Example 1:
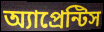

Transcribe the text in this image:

অ্যাপ্রেন্টিস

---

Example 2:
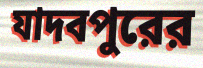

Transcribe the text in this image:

যাদবপুরের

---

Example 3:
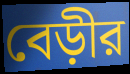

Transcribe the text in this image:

বেড়ীর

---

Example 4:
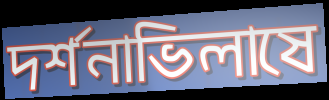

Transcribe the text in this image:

দর্শনাভিলাষে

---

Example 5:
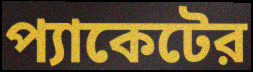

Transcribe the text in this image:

প্যাকেটের